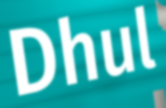
Dhul